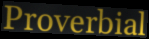
Proverbial